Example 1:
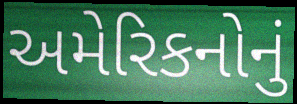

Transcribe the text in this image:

અમેરિકનોનું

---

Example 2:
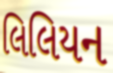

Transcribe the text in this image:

લિલિયન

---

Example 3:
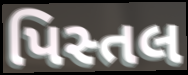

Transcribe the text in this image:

પિસ્તલ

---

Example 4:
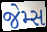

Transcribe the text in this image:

જેમ્સ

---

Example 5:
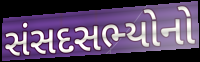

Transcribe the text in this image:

સંસદસભ્યોનો